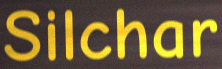
Silchar